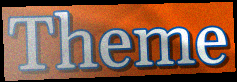
Theme